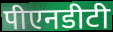
पीएनडीटी